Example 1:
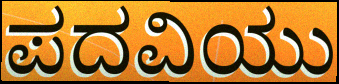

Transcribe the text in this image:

ಪದವಿಯು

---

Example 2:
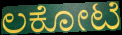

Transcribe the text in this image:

ಲಕೋಟೆ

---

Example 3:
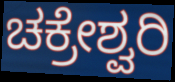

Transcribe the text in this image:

ಚಕ್ರೇಶ್ವರಿ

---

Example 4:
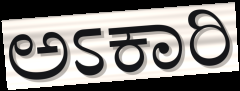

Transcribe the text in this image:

ಅಽಕಾರಿ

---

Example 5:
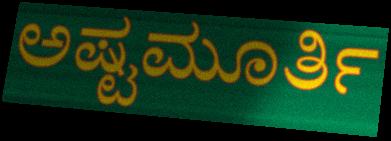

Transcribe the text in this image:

ಅಷ್ಟಮೂರ್ತಿ